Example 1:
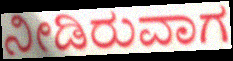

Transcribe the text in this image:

ನೀಡಿರುವಾಗ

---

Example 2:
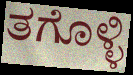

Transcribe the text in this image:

ತಗೊಳ್ಳಿ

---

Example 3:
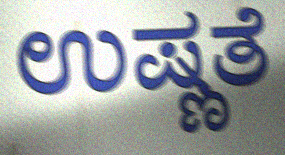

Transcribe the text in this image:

ಉಷ್ಣತೆ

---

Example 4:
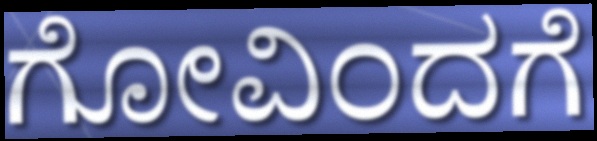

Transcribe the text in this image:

ಗೋವಿಂದಗೆ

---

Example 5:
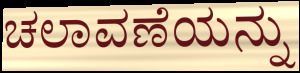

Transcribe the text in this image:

ಚಲಾವಣೆಯನ್ನು